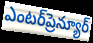
ఎంటర్‌ప్రెన్యూర్